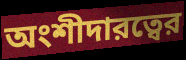
অংশীদারত্বের